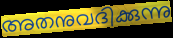
അതനുവദിക്കുന്നു